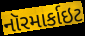
નૉરમાર્કાઇટ